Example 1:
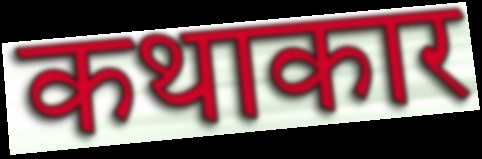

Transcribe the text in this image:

कथाकार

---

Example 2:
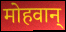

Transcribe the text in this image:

मोहवान्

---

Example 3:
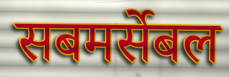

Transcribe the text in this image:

सबमर्सेबल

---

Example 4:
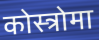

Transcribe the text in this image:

कोस्त्रोमा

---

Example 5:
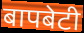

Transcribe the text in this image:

बापबेटी